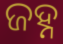
ଜହ୍ନ